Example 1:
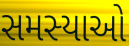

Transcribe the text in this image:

સમસ્યાઓ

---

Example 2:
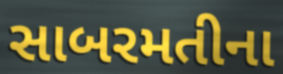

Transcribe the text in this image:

સાબરમતીના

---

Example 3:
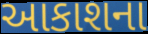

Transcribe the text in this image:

આકાશના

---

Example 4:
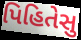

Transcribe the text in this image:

પિહિતેસુ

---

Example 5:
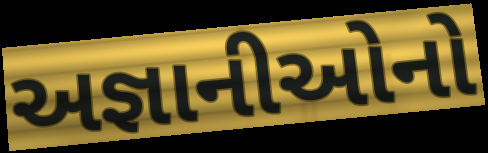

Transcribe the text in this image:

અજ્ઞાનીઓનો